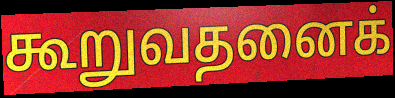
கூறுவதனைக்